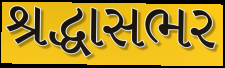
શ્રદ્ધાસભર